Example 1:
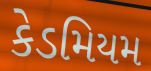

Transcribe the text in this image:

કેડમિયમ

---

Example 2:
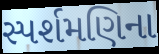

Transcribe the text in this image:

સ્પર્શમણિના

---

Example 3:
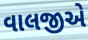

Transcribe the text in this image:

વાલજીએ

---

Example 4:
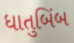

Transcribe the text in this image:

ધાતુબિંબ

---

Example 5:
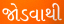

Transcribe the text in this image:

જોડવાથી